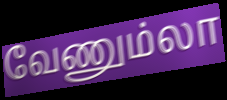
வேணும்லா